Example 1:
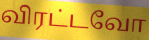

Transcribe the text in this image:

விரட்டவோ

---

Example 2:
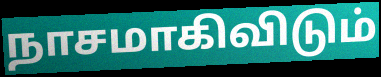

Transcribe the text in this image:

நாசமாகிவிடும்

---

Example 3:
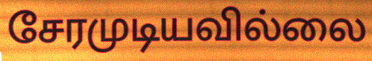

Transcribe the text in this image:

சேரமுடியவில்லை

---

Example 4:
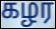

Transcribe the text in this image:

கழர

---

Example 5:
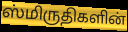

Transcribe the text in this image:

ஸ்மிருதிகளின்